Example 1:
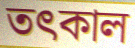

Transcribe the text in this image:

তৎকাল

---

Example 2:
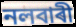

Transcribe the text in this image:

নলবাৰী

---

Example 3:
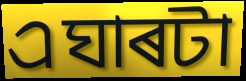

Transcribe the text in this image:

এঘাৰটা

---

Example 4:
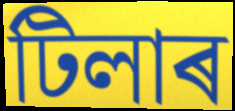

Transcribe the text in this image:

টিলাৰ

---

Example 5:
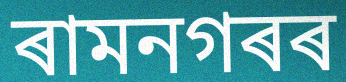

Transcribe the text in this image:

ৰামনগৰৰ